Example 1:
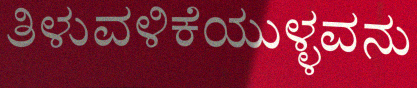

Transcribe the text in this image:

ತಿಳುವಳಿಕೆಯುಳ್ಳವನು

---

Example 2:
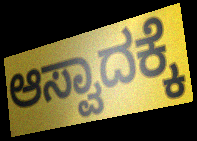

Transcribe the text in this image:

ಆಸ್ವಾದಕ್ಕೆ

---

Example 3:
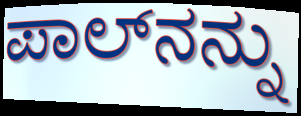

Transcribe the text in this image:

ಪಾಲ್‍ನನ್ನು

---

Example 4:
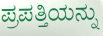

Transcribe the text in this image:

ಪ್ರಪತ್ತಿಯನ್ನು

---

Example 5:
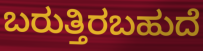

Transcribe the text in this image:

ಬರುತ್ತಿರಬಹುದೆ